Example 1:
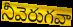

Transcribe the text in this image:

నీవెరుగవా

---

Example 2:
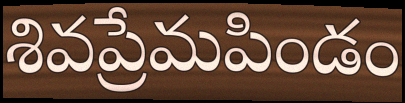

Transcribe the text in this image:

శివప్రేమపిండం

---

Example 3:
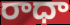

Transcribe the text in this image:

రాధా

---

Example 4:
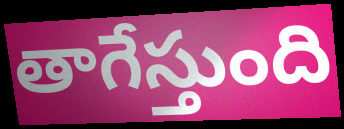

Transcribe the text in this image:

తాగేస్తుంది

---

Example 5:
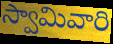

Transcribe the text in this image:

స్వామివారి